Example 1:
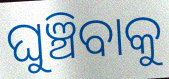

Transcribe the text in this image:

ଘୁଞ୍ଚିବାକୁ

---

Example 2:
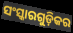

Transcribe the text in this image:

ସଂସ୍କାରଗୁଡ଼ିକର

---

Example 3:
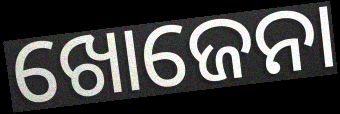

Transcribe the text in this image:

ଖୋଜେନା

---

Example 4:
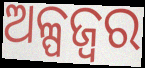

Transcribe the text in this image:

ଅଳ୍ପଜ୍ଵର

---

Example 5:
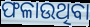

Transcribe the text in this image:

ଫଳାଉଥିବା